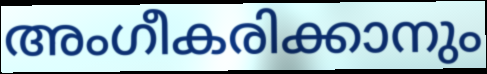
അംഗീകരിക്കാനും